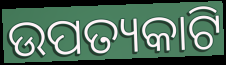
ଉପତ୍ୟକାଟି